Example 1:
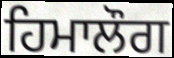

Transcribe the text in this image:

ਹਿਮਾਲੌਗ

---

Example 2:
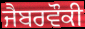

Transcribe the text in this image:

ਜੈਬਰਵੌਕੀ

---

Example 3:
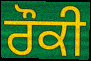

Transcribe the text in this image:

ਰੌਕੀ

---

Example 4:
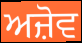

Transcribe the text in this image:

ਅਜ਼ੋਵ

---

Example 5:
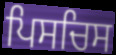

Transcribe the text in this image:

ਪਿਸਚਿਸ